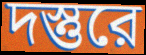
দস্তুরে